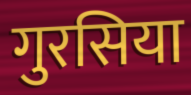
गुरसिया